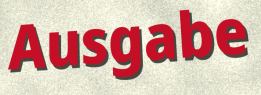
Ausgabe